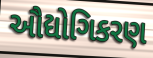
ઔદ્યોગિકરણ